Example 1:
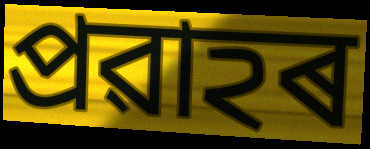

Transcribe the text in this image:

প্ৰৱাহৰ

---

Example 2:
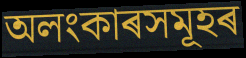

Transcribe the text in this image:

অলংকাৰসমূহৰ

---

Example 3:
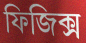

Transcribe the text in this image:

ফিজিক্স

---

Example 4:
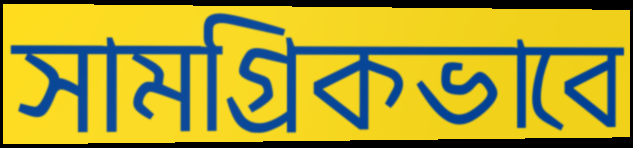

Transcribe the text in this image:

সামগ্ৰিকভাবে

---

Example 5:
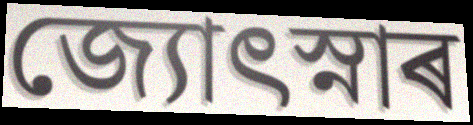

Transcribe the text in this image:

জ্যোৎস্নাৰ